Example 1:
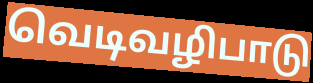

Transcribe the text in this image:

வெடிவழிபாடு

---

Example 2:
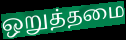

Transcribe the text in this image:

ஒறுத்தமை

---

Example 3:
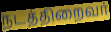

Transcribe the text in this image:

நடத்திறைவர்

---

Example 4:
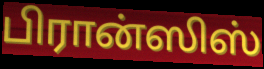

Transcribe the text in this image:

பிரான்ஸிஸ்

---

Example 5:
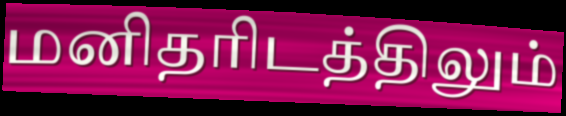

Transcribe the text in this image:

மனிதரிடத்திலும்